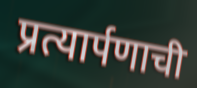
प्रत्यार्पणाची